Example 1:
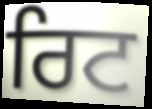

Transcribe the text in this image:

ਰਿਟ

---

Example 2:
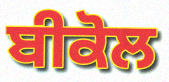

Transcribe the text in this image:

ਬੀਕੋਲ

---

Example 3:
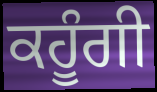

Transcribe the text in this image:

ਕਹੂੰਗੀ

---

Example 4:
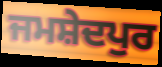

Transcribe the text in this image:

ਜਮਸ਼ੇਦਪੁਰ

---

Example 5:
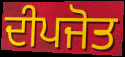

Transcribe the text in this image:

ਦੀਪਜੋਤ